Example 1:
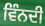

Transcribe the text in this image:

ਵਿੰਨਦੀ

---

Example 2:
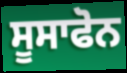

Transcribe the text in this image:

ਸੂਸਾਫੋਨ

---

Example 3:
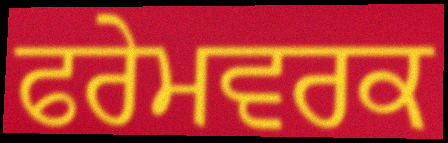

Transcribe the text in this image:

ਫਰੇਮਵਰਕ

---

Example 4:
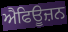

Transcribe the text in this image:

ਐਫਿਊਜ਼ਨ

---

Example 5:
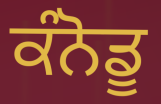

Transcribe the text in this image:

ਕੰਨੋਡੂ